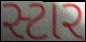
સ્ટાર